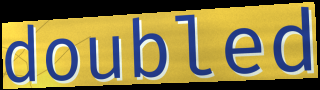
doubled